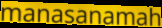
manasanamah